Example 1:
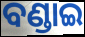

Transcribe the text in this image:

ବଣ୍ଡାଇ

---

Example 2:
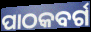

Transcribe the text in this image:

ପାଠକବର୍ଗ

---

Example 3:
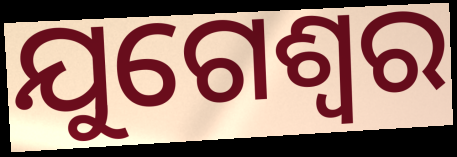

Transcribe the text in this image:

ଯୁଗେଶ୍ଵର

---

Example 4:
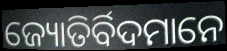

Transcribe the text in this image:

ଜ୍ୟୋତିର୍ବିଦମାନେ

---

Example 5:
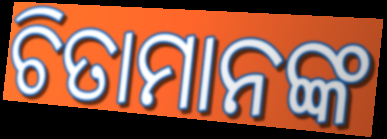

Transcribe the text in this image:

ଚିତାମାନଙ୍କ